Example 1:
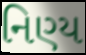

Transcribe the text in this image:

નિણ્ય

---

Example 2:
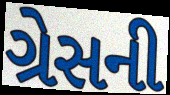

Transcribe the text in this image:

ગ્રેસની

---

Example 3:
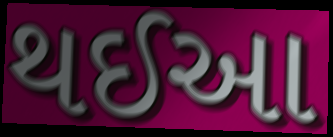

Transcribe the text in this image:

થઈઆ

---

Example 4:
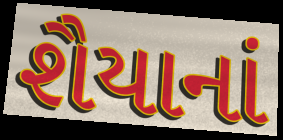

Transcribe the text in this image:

શૈયાનાં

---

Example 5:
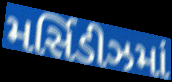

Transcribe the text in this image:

મર્સિડીઝમાં